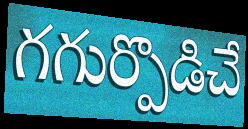
గగుర్పొడిచే